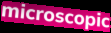
microscopic